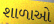
શાળાઓ